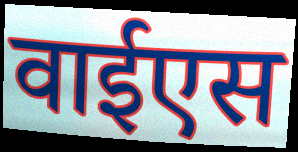
वाईएस